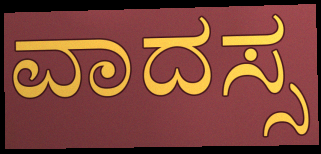
ವಾದಸ್ಸ